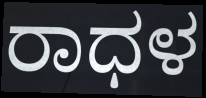
ರಾಧಳ